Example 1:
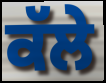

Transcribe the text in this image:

ਕੱਲੇ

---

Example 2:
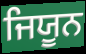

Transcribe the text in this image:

ਜਿਯੂਨ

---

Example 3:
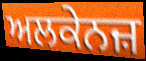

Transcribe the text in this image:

ਅਲਕੇਨਜ਼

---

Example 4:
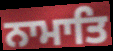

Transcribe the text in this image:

ਨਾਮਾਤਿ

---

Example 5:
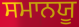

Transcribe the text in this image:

ਸਮਾਨਯੂ